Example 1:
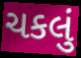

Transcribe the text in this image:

ચકલું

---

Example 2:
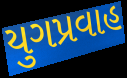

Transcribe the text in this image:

યુગપ્રવાહ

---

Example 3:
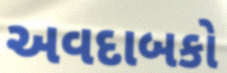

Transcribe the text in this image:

અવદાબકો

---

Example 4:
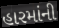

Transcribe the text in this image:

હારમાંની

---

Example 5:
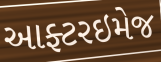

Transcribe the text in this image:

આફ્ટરઇમેજ